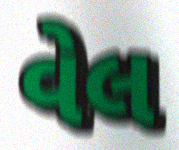
વેલ